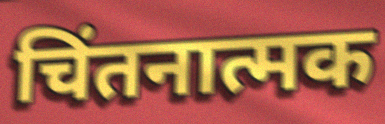
चिंतनात्मक